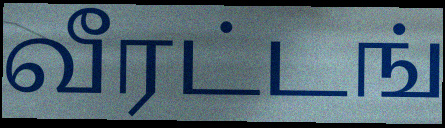
வீரட்டங்